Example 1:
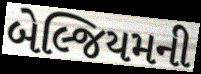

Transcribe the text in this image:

બેલ્જિયમની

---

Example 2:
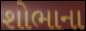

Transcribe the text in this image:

શોભાના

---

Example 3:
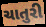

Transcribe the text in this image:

ચાતુરી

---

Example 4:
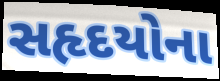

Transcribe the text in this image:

સહૃદયોના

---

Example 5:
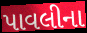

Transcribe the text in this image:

પાવલીના